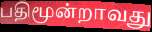
பதிமூன்றாவது